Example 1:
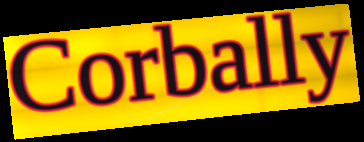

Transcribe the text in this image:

Corbally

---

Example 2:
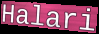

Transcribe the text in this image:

Halari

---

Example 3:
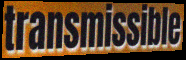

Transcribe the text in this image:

transmissible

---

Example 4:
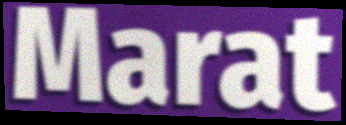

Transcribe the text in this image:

Marat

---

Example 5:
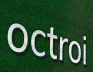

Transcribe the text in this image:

octroi